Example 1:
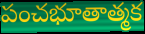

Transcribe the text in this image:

పంచభూతాత్మక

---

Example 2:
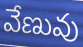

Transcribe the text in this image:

వేణువు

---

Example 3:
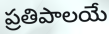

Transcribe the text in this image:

ప్రతిపాలయే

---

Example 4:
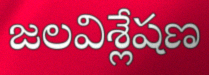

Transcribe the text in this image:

జలవిశ్లేషణ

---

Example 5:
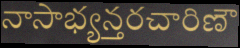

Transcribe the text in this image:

నాసాభ్యన్తరచారిణౌ